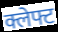
क्लेफ्ट